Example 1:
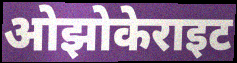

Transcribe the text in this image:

ओझोकेराइट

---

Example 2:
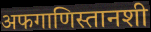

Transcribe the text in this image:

अफगाणिस्तानशी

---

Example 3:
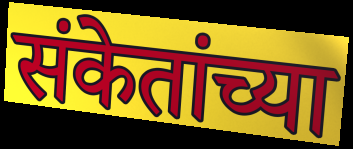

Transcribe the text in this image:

संकेतांच्या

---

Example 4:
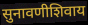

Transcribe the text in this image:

सुनावणीशिवाय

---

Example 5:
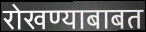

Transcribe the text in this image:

रोखण्याबाबत